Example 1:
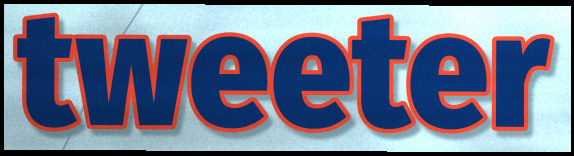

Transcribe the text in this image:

tweeter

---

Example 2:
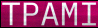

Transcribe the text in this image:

TPAMI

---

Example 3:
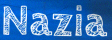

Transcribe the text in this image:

Nazia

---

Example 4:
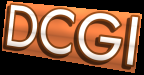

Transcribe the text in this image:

DCGI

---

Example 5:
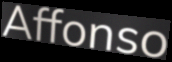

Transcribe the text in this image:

Affonso